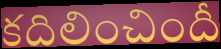
కదిలించిందీ